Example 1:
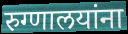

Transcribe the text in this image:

रुग्णालयांना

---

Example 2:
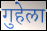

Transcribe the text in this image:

गुहेला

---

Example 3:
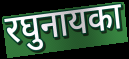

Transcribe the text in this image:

रघुनायका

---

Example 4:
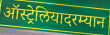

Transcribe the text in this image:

ऑस्ट्रेलियादरम्यान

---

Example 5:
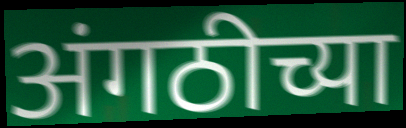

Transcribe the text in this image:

अंगठीच्या